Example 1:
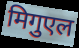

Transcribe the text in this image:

मिगुएल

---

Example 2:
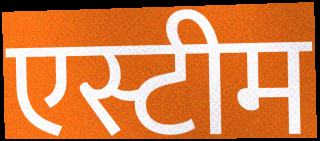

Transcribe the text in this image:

एस्टीम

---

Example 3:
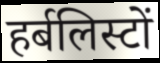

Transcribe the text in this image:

हर्बलिस्टों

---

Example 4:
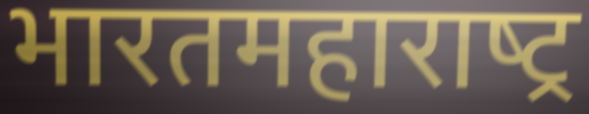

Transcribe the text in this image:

भारतमहाराष्ट्र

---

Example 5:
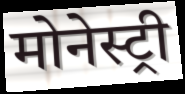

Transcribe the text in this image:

मोनेस्‍ट्री